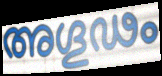
അഗൂഢം